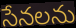
సేనలను